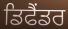
ਡਿਫੈਂਡਰ